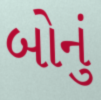
બોનું